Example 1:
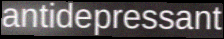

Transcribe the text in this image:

antidepressant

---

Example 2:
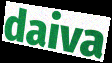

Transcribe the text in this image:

daiva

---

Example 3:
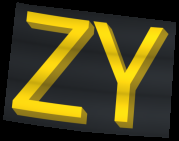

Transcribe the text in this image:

ZY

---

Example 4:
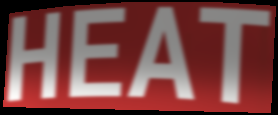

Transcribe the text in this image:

HEAT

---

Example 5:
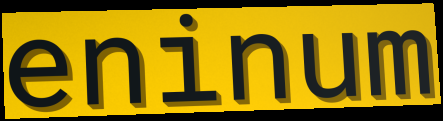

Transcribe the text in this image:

eninum